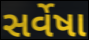
સર્વેષા